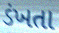
ડંખતા